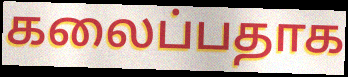
கலைப்பதாக